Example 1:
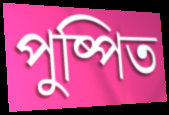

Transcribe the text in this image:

পুষ্পিত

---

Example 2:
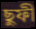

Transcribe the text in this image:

ছুফী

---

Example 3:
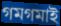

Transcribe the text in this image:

গমগমাই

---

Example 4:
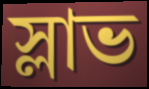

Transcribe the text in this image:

স্লাভ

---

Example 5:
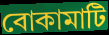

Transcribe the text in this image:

বোকামাটি